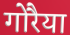
गोरैया